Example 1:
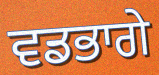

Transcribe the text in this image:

ਵਡਭਾਗੇ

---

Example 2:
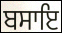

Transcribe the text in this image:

ਬਸਾਇ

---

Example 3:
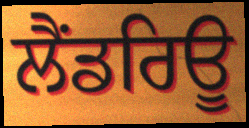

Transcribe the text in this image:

ਲੈਂਡਰਿਊ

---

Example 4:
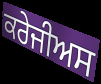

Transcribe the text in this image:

ਕਰੇਜੀਅਸ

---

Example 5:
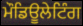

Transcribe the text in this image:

ਮੌਡਿਊਲੇਟਿੰਗ